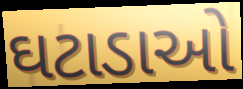
ઘટાડાઓ